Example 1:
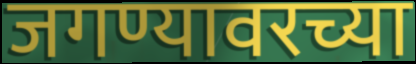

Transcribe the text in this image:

जगण्यावरच्या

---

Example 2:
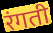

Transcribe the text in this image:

रंगती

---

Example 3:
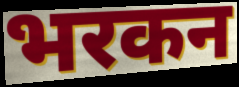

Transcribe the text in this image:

भरकन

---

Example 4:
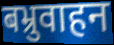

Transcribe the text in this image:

बभ्रुवाहन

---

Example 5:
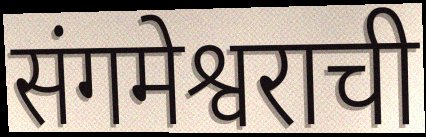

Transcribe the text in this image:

संगमेश्वराची